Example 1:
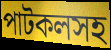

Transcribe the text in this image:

পাটকলসহ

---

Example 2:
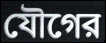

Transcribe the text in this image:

যৌগের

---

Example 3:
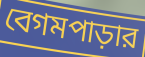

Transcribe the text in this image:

বেগমপাড়ার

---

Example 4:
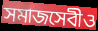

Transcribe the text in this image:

সমাজসেবীও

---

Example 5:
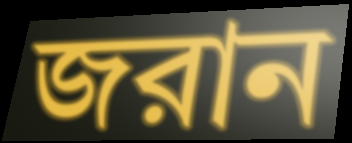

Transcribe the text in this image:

জরান